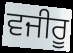
ਵਜੀਰੂ